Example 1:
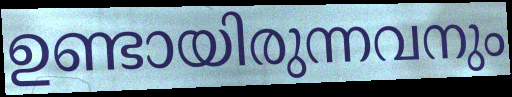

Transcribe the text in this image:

ഉണ്ടായിരുന്നവനും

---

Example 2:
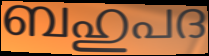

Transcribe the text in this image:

ബഹുപദ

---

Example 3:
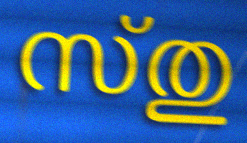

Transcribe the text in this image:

സ്‌തു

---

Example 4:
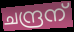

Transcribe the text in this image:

ചന്ദ്രന്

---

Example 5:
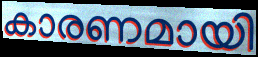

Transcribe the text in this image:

കാരണമായി